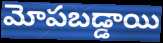
మోపబడ్డాయి